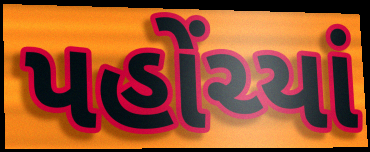
પહોંચ્યાં